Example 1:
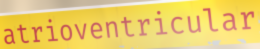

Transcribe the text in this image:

atrioventricular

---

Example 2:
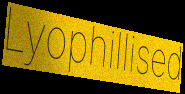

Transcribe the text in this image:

Lyophillised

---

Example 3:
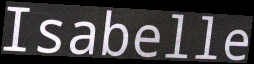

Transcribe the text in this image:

Isabelle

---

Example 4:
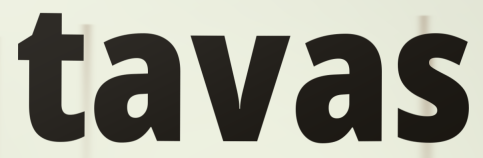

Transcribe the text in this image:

tavas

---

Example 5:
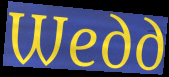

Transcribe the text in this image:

Wedd